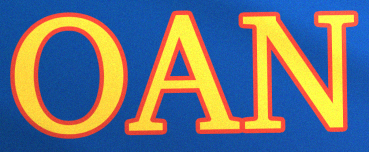
OAN